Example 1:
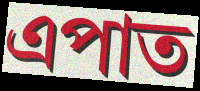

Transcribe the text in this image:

এপাত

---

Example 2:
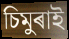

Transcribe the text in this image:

চিমুৰাই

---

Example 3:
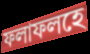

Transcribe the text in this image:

ফলাফলহে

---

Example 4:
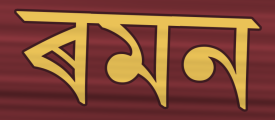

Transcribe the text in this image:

ৰমন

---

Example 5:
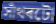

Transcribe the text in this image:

সাঁথৰটো